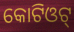
କୋଟିଓଟ୍